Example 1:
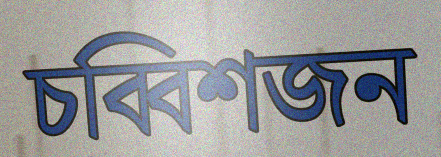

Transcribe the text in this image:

চব্বিশজন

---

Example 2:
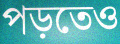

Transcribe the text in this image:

পড়তেও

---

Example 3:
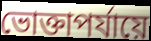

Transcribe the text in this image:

ভোক্তাপর্যায়ে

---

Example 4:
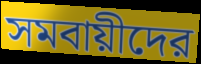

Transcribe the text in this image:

সমবায়ীদের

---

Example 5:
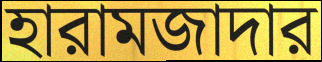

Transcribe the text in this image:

হারামজাদার